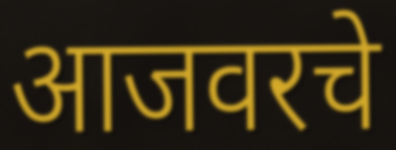
आजवरचे